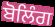
ਬੋਲਿੰਗ